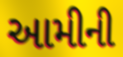
આમીની